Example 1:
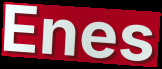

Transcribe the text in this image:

Enes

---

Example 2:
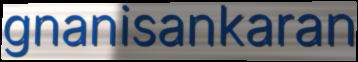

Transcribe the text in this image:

gnanisankaran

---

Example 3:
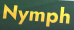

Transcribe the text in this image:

Nymph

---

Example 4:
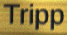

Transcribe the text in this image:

Tripp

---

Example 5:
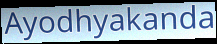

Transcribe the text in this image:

Ayodhyakanda